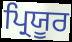
ਪ੍ਰਿਯੂਰ